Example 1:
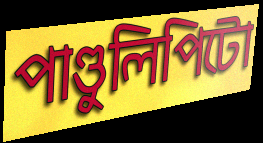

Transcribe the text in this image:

পাণ্ডুলিপিটো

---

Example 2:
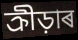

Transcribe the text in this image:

ক্ৰীড়াৰ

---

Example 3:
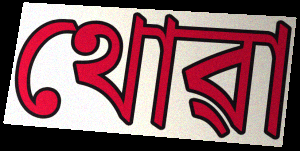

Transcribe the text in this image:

থোৱা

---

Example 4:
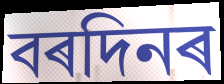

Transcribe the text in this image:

বৰদিনৰ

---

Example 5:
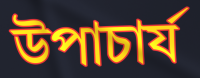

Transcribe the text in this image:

উপাচাৰ্য